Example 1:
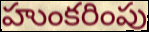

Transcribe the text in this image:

హుంకరింపు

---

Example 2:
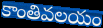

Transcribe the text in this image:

కాంతివలయం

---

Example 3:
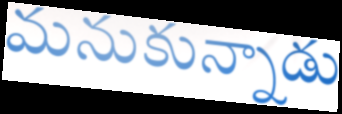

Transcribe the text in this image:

మనుకున్నాడు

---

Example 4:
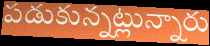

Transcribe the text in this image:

పడుకున్నట్లున్నారు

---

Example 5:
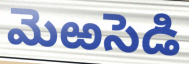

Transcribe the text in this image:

మెఱసెడి